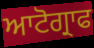
ਆਟੋਗ੍ਰਾਫ